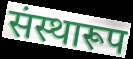
संस्थारूप